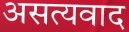
असत्यवाद